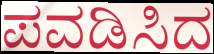
ಪವಡಿಸಿದ